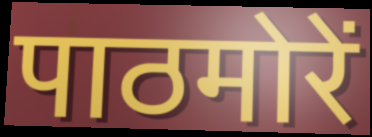
पाठमोरें